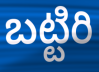
బట్టిరి